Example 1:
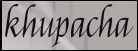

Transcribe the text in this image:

khupacha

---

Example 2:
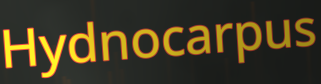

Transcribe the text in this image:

Hydnocarpus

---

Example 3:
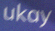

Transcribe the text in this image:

ukay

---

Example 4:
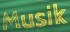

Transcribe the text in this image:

Musik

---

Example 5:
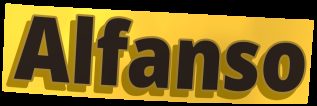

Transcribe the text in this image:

Alfanso